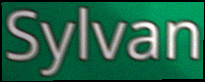
Sylvan